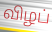
விழப்